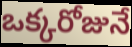
ఒక్కరోజునే